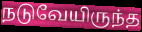
நடுவேயிருந்த